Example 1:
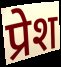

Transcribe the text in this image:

प्रेश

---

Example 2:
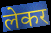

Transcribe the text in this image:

लेकर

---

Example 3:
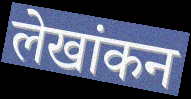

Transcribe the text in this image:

लेखांकन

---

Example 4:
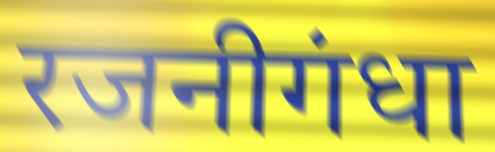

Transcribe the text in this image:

रजनीगंधा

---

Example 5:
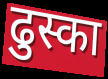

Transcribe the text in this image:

ढुस्का